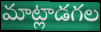
మాట్లాడగల